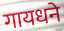
गायधने